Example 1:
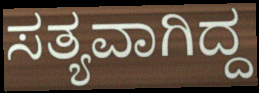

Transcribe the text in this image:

ಸತ್ಯವಾಗಿದ್ದ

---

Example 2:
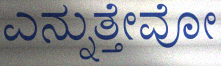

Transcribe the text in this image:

ಎನ್ನುತ್ತೇವೋ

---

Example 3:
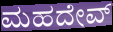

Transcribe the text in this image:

ಮಹದೇವ್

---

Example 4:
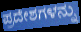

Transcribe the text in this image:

ಪ್ರದೇಶಗಳನ್ನು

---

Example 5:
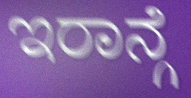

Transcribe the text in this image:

ಇರಾನ್ಗೆ